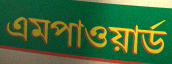
এমপাওয়ার্ড